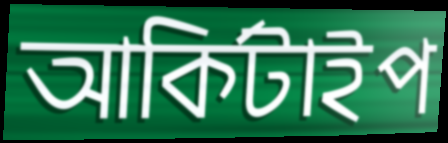
আৰ্কিটাইপ